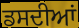
ਡਸਦੀਆਂ